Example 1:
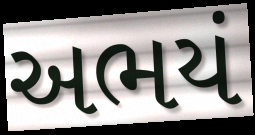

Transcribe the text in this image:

અભયં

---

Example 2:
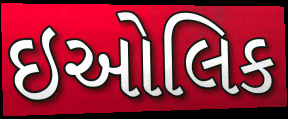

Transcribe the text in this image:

ઇઓલિક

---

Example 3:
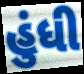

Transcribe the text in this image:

હુંધી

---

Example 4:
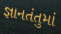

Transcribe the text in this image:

જ્ઞાનતંતુમાં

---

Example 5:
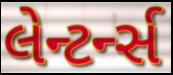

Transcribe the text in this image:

લેન્ટર્ન્સ